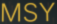
MSY